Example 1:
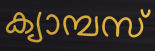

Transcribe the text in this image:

ക്യാമ്പസ്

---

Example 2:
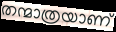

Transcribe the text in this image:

തന്മാത്രയാണ്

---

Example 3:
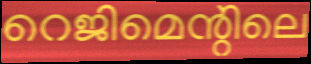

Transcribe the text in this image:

റെജിമെന്റിലെ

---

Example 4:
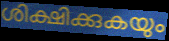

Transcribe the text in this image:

ശിക്ഷിക്കുകയും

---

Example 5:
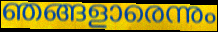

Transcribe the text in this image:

ഞങ്ങളാരെന്നും